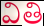
వితి